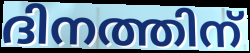
ദിനത്തിന്